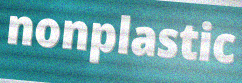
nonplastic